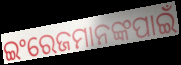
ଇଂରେଜମାନଙ୍କପାଇଁ